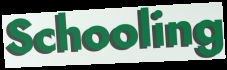
Schooling